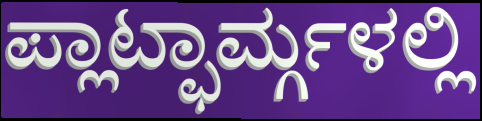
ಪ್ಲಾಟ್ಫಾರ್ಮ್ಗಳಲ್ಲಿ